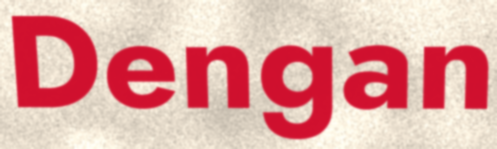
Dengan